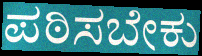
ಪಠಿಸಬೇಕು